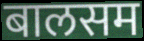
बालसम